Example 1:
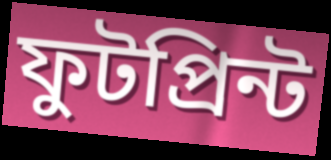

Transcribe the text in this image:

ফুটপ্রিন্ট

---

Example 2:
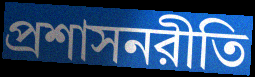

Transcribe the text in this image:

প্রশাসনরীতি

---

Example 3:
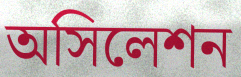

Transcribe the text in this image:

অসিলেশন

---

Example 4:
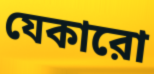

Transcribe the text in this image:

যেকারো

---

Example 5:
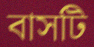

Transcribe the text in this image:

বাসটি